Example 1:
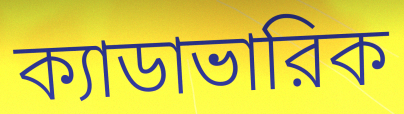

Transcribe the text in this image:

ক্যাডাভারিক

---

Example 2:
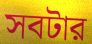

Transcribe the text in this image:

সবটার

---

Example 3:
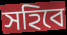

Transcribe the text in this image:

সহিবে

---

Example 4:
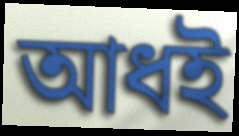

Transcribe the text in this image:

আধই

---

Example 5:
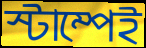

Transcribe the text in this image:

স্টাম্পেই